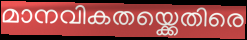
മാനവികതയ്ക്കെതിരെ